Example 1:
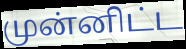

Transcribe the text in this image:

முன்னிட்ட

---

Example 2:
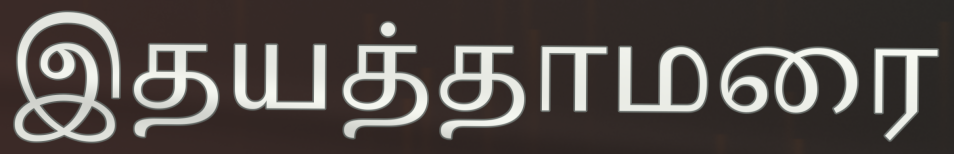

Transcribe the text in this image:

இதயத்தாமரை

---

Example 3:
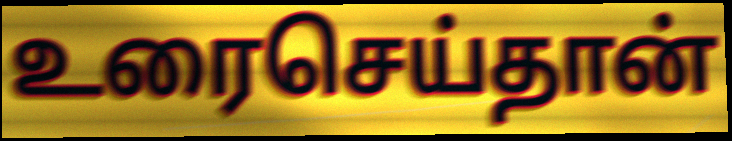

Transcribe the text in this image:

உரைசெய்தான்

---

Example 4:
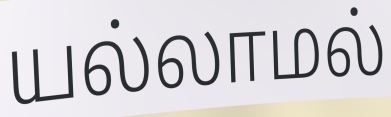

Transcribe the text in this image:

யல்லாமல்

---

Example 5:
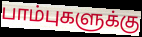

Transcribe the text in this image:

பாம்புகளுக்கு